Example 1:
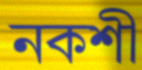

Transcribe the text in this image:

নকশী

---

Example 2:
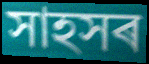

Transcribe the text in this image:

সাহসৰ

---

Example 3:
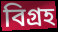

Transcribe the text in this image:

বিগ্ৰহ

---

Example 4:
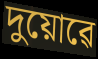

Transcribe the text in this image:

দুয়োৱে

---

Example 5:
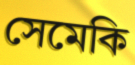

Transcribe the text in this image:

সেমেকি